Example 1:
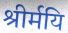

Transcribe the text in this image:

श्रीर्मयि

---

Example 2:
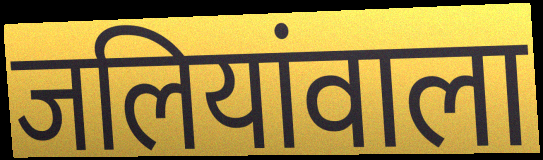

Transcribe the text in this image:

जलियांवाला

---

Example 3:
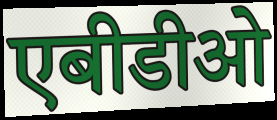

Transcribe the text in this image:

एबीडीओ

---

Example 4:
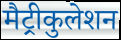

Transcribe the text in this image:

मैट्रीकुलेशन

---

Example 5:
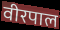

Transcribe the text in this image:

वीरपाल